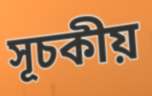
সূচকীয়